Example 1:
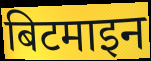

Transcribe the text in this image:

बिटमाइन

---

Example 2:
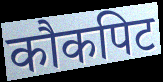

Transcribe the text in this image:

कौकपिट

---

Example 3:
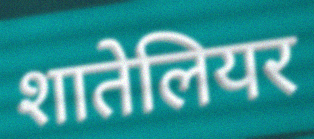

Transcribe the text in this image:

शातेलियर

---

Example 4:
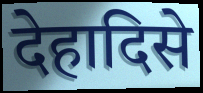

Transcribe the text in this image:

देहादिसे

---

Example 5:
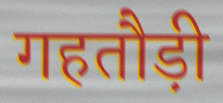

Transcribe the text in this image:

गहतौड़ी